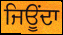
ਜਿਊੂਂਦਾ